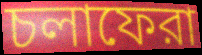
চলাফেরা